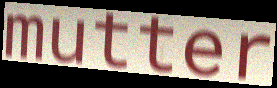
mutter